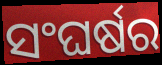
ସଂଘର୍ଷର